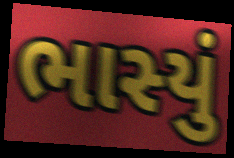
ભાસ્યું